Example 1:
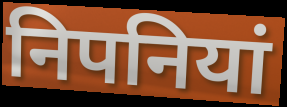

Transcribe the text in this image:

निपनियां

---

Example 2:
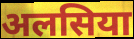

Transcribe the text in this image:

अलसिया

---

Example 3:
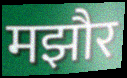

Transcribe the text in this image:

मझौर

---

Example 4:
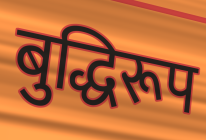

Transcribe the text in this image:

बुद्धिरूप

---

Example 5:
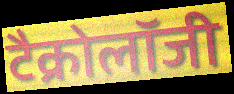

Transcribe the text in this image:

टैक्रोलॉजी